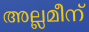
അല്ലമീന്